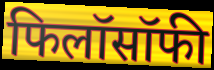
फिलॉसॉफी